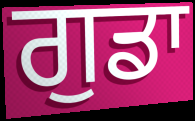
ਗੁਡਾ